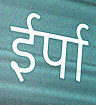
ईर्पा